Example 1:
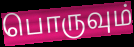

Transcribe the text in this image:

பொருவும்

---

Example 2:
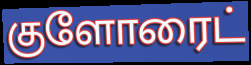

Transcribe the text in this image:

குளோரைட்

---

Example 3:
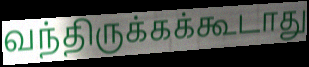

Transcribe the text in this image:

வந்திருக்கக்கூடாது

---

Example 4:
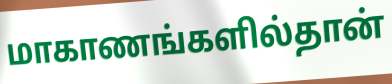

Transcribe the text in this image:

மாகாணங்களில்தான்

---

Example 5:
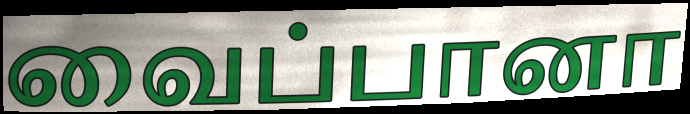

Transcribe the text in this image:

வைப்பானா